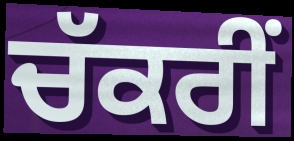
ਚੱਕਰੀਂ